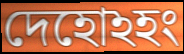
দেহোঽহং